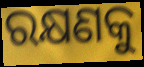
ରକ୍ଷଣକୁ